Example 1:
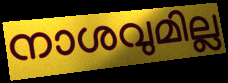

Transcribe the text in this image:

നാശവുമില്ല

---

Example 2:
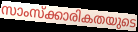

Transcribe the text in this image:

സാംസ്ക്കാരികതയുടെ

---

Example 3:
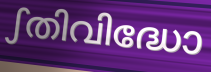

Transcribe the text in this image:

ഽതിവിദ്ധോ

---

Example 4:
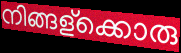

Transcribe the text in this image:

നിങ്ങള്ക്കൊരു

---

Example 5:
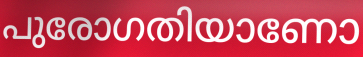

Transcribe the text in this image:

പുരോഗതിയാണോ